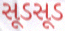
સૂડસૂડ